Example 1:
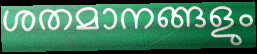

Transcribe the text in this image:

ശതമാനങ്ങളും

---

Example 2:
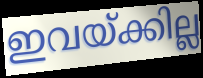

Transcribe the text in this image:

ഇവയ്ക്കില്ല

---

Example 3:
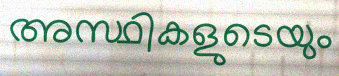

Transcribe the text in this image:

അസ്ഥികളുടെയും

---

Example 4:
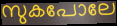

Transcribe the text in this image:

സുകപോലേ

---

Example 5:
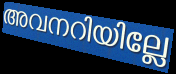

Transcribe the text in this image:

അവനറിയില്ലേ